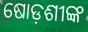
ଷୋଡ଼ଶୀଙ୍କ